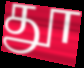
தூ